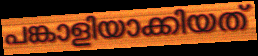
പങ്കാളിയാക്കിയത്